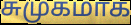
சுமுகமாக